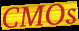
CMOs